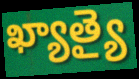
ఖ్యాత్యై